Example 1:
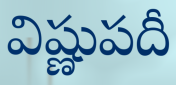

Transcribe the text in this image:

విష్ణుపదీ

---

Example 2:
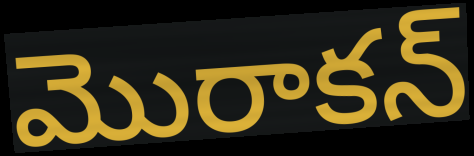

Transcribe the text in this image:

మొరాకన్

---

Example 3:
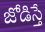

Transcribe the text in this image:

జోడిస్తే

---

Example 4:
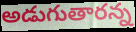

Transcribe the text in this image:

అడుగుతారన్న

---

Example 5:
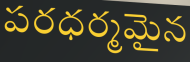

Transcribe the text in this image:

పరధర్మమైన